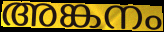
അങ്കനം